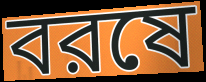
বরষে